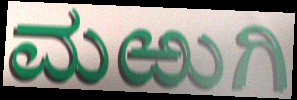
ಮಱುಗಿ